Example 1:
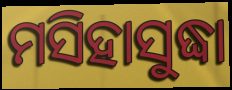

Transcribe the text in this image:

ମସିହାସୁଦ୍ଧା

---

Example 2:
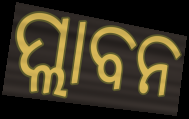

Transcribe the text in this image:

ପ୍ଲାବନ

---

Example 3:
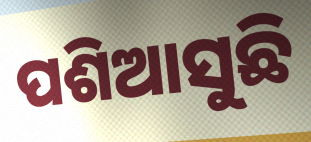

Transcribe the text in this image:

ପଶିଆସୁଛି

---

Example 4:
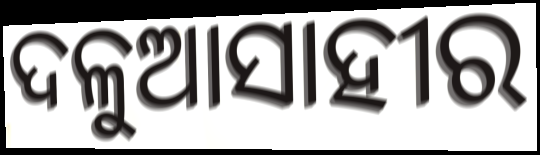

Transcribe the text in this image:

ଦଳୁଆସାହୀର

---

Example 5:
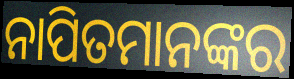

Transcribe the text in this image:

ନାପିତମାନଙ୍କର